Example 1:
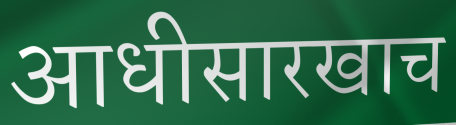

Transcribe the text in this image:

आधीसारखाच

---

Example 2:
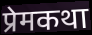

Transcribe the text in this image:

प्रेमकथा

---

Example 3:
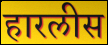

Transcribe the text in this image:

हारलीस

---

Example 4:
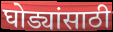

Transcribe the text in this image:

घोड्यांसाठी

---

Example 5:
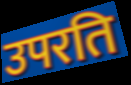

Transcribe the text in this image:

उपरति